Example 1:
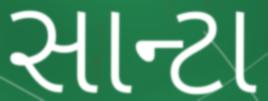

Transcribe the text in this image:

સાન્ટા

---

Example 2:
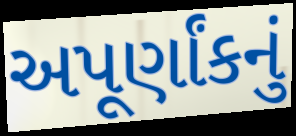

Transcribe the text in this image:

અપૂર્ણાંકનું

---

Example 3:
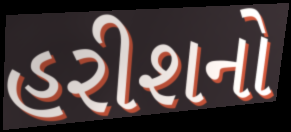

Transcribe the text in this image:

હરીશનો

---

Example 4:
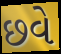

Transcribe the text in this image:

છવે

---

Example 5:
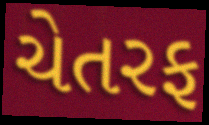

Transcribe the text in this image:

ચેતરફ